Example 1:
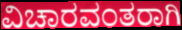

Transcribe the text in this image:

ವಿಚಾರವಂತರಾಗಿ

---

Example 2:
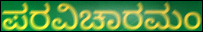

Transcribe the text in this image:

ಪರವಿಚಾರಮಂ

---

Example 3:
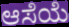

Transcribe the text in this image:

ಆಸೆಯೆ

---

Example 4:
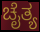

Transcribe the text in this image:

ಚೈತ್ಯ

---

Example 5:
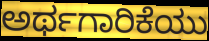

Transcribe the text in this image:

ಅರ್ಥಗಾರಿಕೆಯು